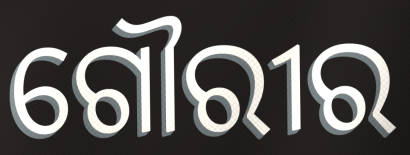
ଗୌରୀର